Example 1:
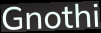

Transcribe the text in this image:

Gnothi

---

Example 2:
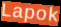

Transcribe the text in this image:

Lapok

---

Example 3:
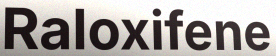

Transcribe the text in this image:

Raloxifene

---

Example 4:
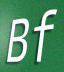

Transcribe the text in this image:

Bf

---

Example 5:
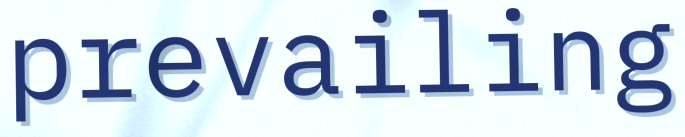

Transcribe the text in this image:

prevailing